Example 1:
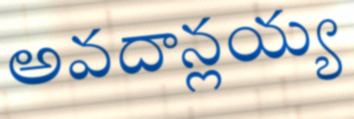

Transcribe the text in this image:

అవదాన్లయ్య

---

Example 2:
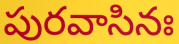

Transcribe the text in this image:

పురవాసినః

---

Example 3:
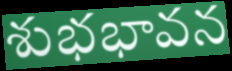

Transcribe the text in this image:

శుభభావన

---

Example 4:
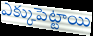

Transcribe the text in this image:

ఎక్కుపెట్టాయి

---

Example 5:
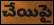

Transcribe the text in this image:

చేయిపై